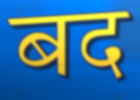
बद